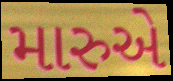
મારુએ